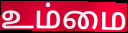
உம்மை